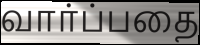
வார்ப்பதை